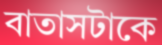
বাতাসটাকে